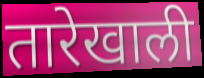
तारेखाली